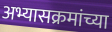
अभ्यासक्रमांच्या